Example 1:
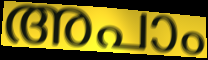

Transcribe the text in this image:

അപാം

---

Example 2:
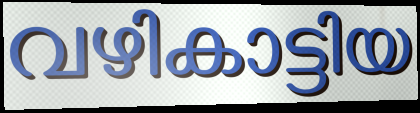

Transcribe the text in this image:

വഴികാട്ടിയ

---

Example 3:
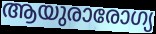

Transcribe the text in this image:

ആയുരാരോഗ്യ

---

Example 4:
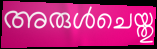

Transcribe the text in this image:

അരുൾചെയ്തു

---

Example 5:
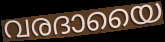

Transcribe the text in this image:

വരദായൈ